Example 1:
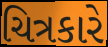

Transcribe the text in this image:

ચિત્રકારે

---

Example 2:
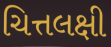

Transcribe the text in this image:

ચિત્તલક્ષી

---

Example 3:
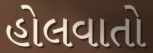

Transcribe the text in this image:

હોલવાતો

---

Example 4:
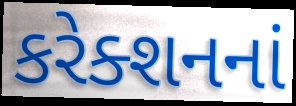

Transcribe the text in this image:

કરેક્શનનાં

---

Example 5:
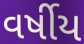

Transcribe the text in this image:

વર્ષીય